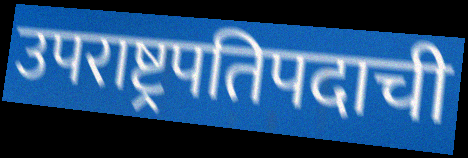
उपराष्ट्रपतिपदाची